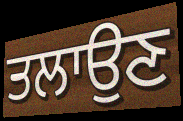
ਤਲਾਉਣ